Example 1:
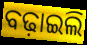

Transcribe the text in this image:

ବଢ଼ାଇଲି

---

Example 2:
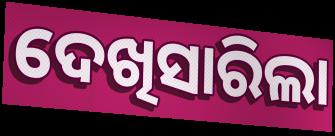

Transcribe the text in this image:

ଦେଖିସାରିଲା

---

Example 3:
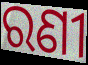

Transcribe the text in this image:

ରଣୀ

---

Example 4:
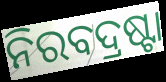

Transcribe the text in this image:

ନିରବଦ୍ରଷ୍ଟା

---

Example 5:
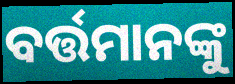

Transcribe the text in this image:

ବର୍ତ୍ତମାନଙ୍କୁ